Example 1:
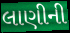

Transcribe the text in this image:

લાણીની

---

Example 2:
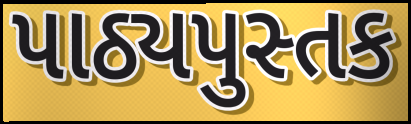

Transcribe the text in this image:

પાઠ્યપુસ્તક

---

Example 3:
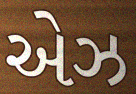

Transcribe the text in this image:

એઝ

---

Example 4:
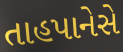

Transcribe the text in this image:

તાહપાનેસે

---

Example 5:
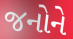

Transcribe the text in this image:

જનોને